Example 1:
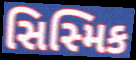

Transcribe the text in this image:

સિસ્મિક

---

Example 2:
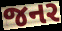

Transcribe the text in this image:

જનર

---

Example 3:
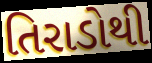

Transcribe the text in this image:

તિરાડોથી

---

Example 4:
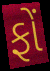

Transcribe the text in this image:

ફોં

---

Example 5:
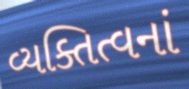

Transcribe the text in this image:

વ્યક્તિત્વનાં